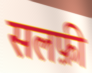
सलफ़ी